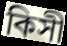
কিসী